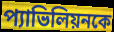
প্যাভিলিয়নকে